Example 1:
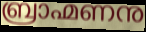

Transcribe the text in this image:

ബ്രാഹ്മണനു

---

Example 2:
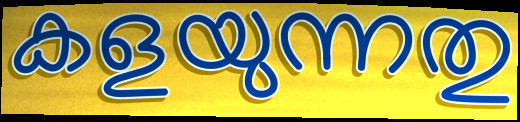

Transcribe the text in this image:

കളയുന്നതു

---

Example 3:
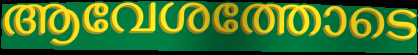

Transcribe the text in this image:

ആവേശത്തോടെ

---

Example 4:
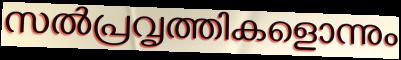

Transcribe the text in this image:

സൽപ്രവൃത്തികളൊന്നും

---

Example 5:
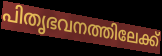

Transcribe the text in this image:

പിതൃഭവനത്തിലേക്ക്